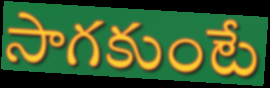
సాగకుంటే